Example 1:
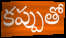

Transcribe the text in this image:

కప్పుతో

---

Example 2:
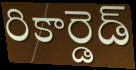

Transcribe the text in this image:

రికార్డెడ్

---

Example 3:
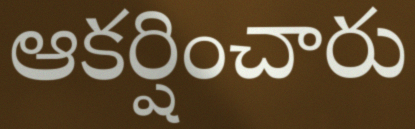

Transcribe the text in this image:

ఆకర్షించారు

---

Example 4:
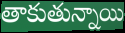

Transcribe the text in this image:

తాకుతున్నాయి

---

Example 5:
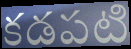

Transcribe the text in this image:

కడపటి